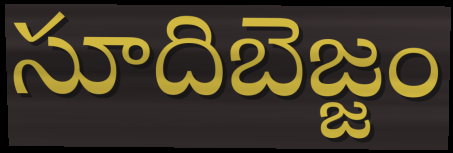
సూదిబెజ్జం